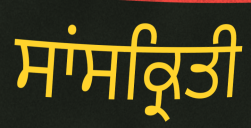
ਸਾਂਸਕ੍ਰਿਤੀ